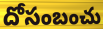
దోసంబంచు